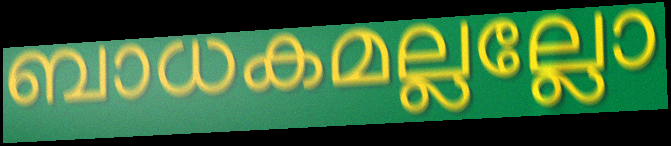
ബാധകമല്ലല്ലോ